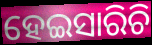
ହେଇସାରିଚି